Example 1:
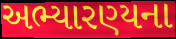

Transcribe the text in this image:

અભ્યારણ્યના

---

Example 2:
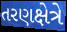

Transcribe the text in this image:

તરણક્ષેત્રે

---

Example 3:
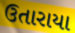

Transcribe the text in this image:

ઉતારાયા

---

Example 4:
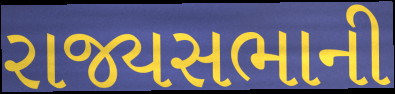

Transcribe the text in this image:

રાજ્યસભાની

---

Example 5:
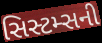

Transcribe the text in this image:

સિસ્ટમ્સની